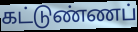
கட்டுண்ணப்